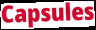
Capsules